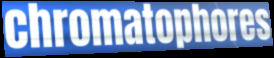
chromatophores